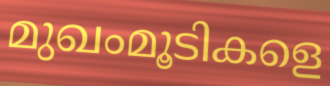
മുഖംമൂടികളെ